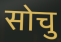
सोचु